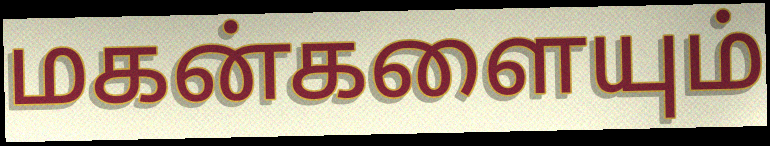
மகன்களையும்